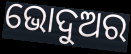
ଭୋଦୁଅର